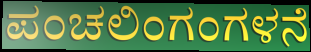
ಪಂಚಲಿಂಗಂಗಳನೆ